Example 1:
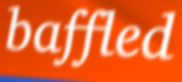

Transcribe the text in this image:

baffled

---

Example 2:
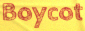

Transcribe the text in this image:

Boycot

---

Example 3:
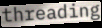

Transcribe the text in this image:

threading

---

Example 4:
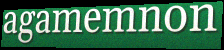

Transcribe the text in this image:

agamemnon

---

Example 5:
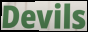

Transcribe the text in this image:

Devils